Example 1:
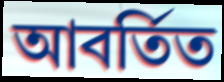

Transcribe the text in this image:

আবর্তিত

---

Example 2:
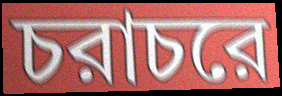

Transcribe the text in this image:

চরাচরে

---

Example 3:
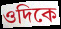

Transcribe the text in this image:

ওদিকে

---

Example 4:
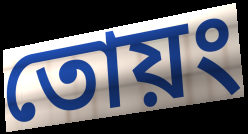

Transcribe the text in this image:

তোয়ং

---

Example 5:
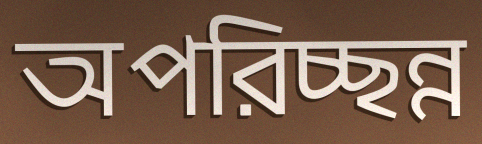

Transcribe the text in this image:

অপরিচ্ছন্ন